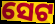
ସେଟ